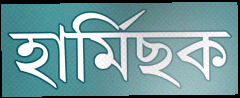
হাৰ্মিছক